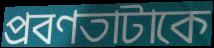
প্রবণতাটাকে